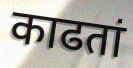
काढतां